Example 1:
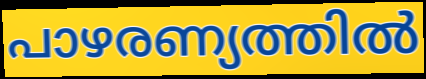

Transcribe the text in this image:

പാഴരണ്യത്തിൽ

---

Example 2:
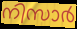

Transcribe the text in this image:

നിസാർ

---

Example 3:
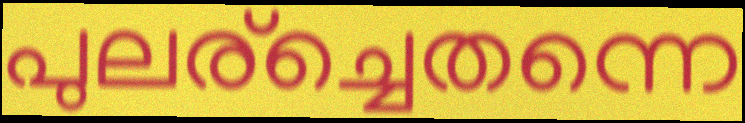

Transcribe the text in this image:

പുലര്ച്ചെതന്നെ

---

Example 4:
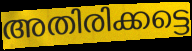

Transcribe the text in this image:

അതിരിക്കട്ടെ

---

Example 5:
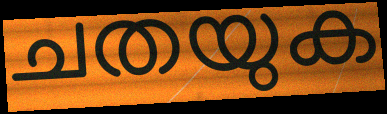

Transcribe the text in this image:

ചതയുക